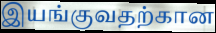
இயங்குவதற்கான